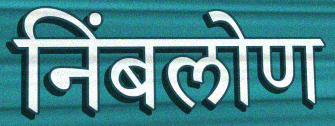
निंबलोण